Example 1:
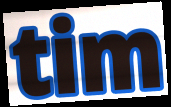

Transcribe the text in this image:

tim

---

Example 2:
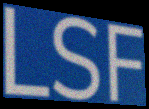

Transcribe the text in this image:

LSF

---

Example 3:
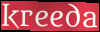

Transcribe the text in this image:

kreeda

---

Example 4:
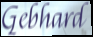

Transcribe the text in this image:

Gebhard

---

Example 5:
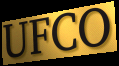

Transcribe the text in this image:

UFCO